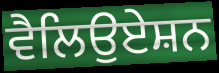
ਵੈਲਿਉਏਸ਼ਨ